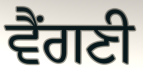
ਵੈਂਗਣੀ